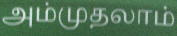
அம்முதலாம்